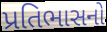
પ્રતિભાસનો